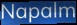
Napalm